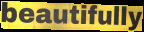
beautifully